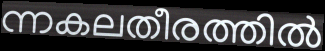
ന്നകലതീരത്തിൽ